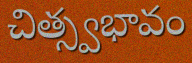
చిత్స్వభావం